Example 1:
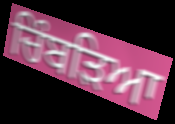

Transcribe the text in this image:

ਚਿੰਬੜਿਆ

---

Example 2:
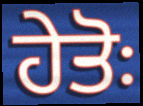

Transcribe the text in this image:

ਹੇਤੋਃ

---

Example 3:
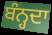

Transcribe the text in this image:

ਬੰਨ੍ਹਦਾ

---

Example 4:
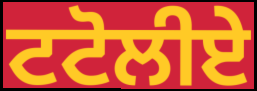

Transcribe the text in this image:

ਟਟੋਲੀਏ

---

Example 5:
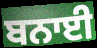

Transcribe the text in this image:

ਬਨਾਈ